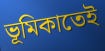
ভূমিকাতেই